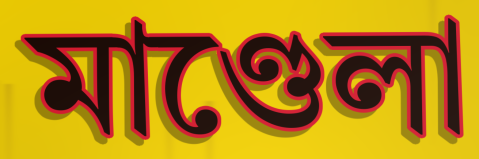
মাণ্ডেলা